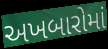
અખબારોમાં